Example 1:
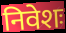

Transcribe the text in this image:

निवेशः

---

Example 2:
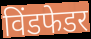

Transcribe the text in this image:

विंडफेडर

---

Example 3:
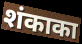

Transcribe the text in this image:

शंकाका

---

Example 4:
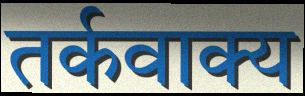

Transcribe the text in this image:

तर्कवाक्य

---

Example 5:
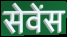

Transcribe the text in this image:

सेवेंस